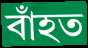
বাঁহত